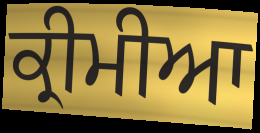
ਕ੍ਰੀਮੀਆ